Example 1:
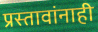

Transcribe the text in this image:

प्रस्तावांनाही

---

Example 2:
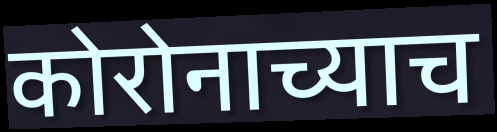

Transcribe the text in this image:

कोरोनाच्याच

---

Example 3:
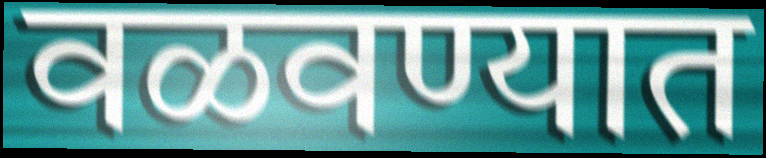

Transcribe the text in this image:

वळवण्यात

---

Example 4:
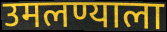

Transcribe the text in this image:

उमलण्याला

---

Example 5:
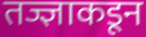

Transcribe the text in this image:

तज्ज्ञाकडून